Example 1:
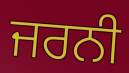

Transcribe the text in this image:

ਜਰਨੀ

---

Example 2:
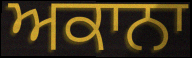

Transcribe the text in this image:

ਅਕਾਨਾ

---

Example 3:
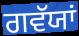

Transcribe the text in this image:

ਗਵੱਯਾਂ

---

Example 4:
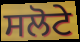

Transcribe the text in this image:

ਸਲੋਟੇ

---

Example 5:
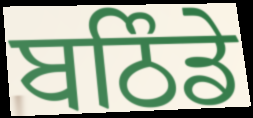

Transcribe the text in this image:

ਬਠਿੰਡੇ